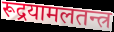
रूद्रयामलतन्त्र